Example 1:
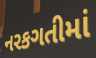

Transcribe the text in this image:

નરકગતીમાં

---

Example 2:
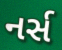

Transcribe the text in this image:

નર્સ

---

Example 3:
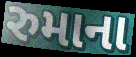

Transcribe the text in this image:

રુમાના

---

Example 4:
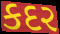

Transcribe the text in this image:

કદર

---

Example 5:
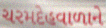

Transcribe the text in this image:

ચરમદેહવાળાને